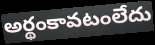
అర్థంకావటంలేదు